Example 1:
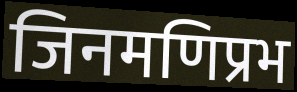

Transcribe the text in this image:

जिनमणिप्रभ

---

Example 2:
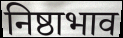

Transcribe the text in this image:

निष्ठाभाव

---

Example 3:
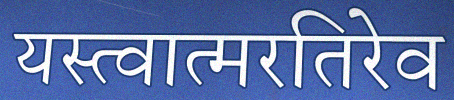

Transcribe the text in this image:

यस्त्वात्मरतिरेव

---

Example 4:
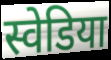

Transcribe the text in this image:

स्वेडिया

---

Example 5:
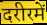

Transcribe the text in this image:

दरीरमें